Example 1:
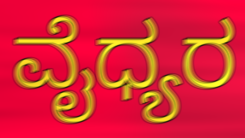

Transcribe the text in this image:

ವೈಧ್ಯರ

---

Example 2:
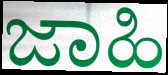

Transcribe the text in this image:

ಜಾಹಿ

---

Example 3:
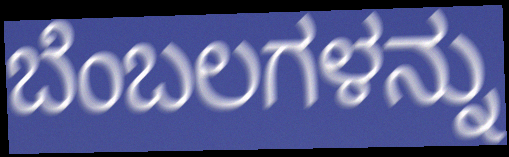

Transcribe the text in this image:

ಬೆಂಬಲಗಳನ್ನು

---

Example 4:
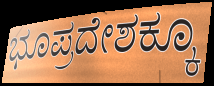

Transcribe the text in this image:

ಭೂಪ್ರದೇಶಕ್ಕೂ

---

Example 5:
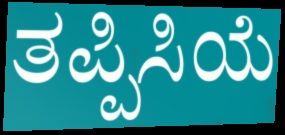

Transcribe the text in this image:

ತಪ್ಪಿಸಿಯೆ